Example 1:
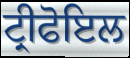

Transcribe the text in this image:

ਟ੍ਰੀਫੋਇਲ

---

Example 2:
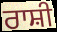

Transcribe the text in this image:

ਰਾਸ਼ੀ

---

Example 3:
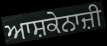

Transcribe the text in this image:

ਆਸ਼ਕੇਨਾਜ਼ੀ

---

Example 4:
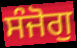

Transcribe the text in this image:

ਸੰਜੋਗੁ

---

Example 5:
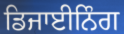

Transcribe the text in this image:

ਡਿਜਾਈਨਿੰਗ